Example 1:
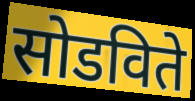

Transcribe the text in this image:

सोडविते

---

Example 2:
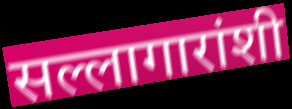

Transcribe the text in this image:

सल्लागारांशी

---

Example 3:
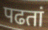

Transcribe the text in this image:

पढतां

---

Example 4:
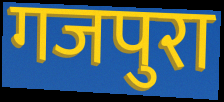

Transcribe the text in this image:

गजपुरा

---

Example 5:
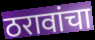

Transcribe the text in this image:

ठरावांचा